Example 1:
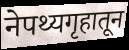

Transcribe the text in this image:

नेपथ्यगृहातून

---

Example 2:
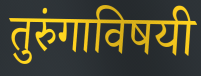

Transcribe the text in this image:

तुरुंगाविषयी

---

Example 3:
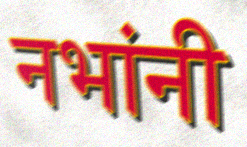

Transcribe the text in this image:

नभांनी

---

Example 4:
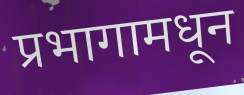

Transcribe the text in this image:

प्रभागामधून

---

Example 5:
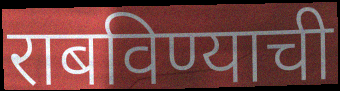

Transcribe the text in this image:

राबविण्याची